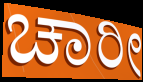
ಚಾರೀ